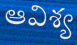
ఆవిశ్య